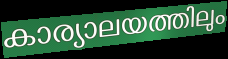
കാര്യാലയത്തിലും